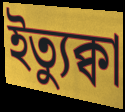
ইত্যুক্বা